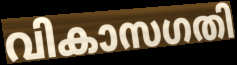
വികാസഗതി